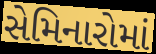
સેમિનારોમાં